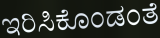
ಇರಿಸಿಕೊಂಡಂತೆ